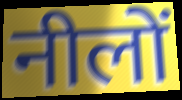
नीलों